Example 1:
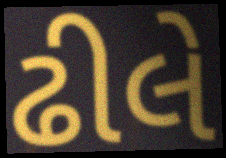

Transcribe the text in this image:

ઢીલે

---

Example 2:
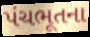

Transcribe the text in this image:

પંચભૂતના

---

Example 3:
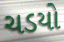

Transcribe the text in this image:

ચડયો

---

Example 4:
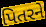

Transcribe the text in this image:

પિતરને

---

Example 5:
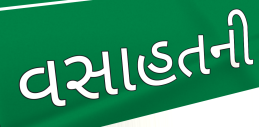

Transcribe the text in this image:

વસાહતની